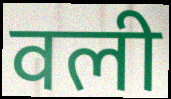
वली